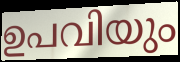
ഉപവിയും